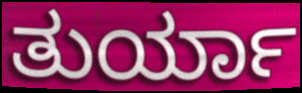
ತುರ್ಯಾ